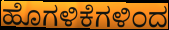
ಹೊಗಳಿಕೆಗಳಿಂದ